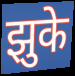
झुके